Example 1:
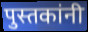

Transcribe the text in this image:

पुस्तकांनी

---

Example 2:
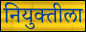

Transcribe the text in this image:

नियुक्तीला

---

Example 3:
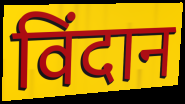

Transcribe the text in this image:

विंदान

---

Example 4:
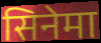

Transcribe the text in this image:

सिनेमा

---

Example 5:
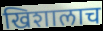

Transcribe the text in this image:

खिशालाच